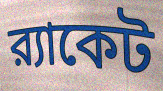
র‍্যাকেট